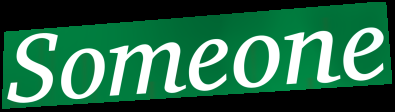
Someone